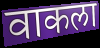
वाकला